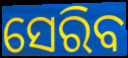
ସେରିବ